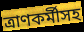
ত্রাণকর্মীসহ